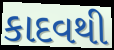
કાદવથી